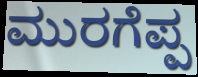
ಮುರಗೆಪ್ಪ